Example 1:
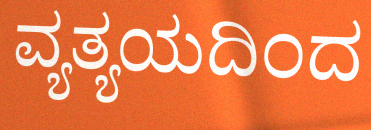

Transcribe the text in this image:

ವ್ಯತ್ಯಯದಿಂದ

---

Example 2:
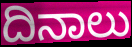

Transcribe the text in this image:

ದಿನಾಲು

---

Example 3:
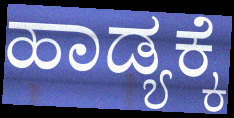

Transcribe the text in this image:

ಹಾಡ್ಯಕ್ಕೆ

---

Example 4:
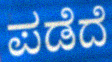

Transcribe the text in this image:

ಪಡೆದೆ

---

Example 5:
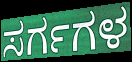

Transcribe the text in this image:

ಸರ್ಗಗಳ